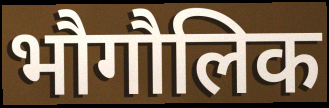
भौगौलिक